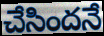
చేసిందనే